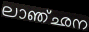
ലാഞ്ഛന